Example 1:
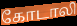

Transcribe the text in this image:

கோடாலி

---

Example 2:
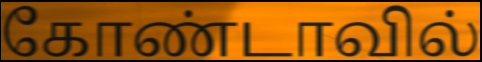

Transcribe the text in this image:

கோண்டாவில்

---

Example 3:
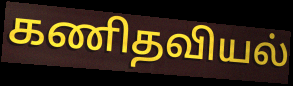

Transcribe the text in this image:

கணிதவியல்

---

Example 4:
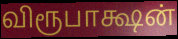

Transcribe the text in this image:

விரூபாக்ஷன்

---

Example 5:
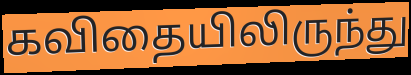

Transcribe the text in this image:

கவிதையிலிருந்து